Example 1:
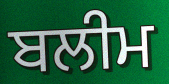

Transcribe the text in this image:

ਬਲੀਮ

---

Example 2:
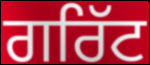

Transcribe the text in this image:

ਗਰਿੱਟ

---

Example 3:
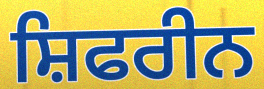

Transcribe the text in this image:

ਸ਼ਿਫਰੀਨ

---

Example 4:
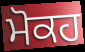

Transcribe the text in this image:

ਮੋਕਹ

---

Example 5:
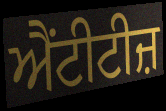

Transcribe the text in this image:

ਐਂਟੀਟੀਜ਼